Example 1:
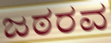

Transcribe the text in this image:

ಜಠರವ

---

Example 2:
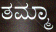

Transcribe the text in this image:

ತಮ್ಮಾ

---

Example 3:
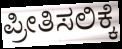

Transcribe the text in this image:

ಪ್ರೀತಿಸಲಿಕ್ಕೆ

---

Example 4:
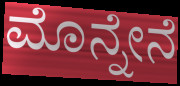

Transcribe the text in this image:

ಮೊನ್ನೇನೆ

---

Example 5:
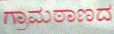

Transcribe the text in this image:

ಗ್ರಾಮಠಾಣದ